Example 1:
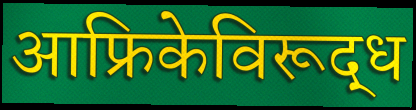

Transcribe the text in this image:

आफ्रिकेविरूद्ध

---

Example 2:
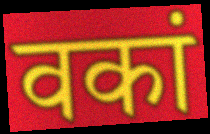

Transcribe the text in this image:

वकां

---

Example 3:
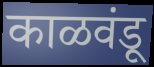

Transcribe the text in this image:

काळवंडू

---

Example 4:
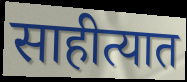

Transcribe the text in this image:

साहीत्यात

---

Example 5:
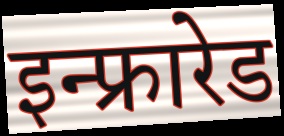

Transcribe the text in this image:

इन्फ्रारेड